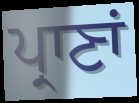
ਪ੍ਰਾਣਾਂ